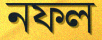
নফল